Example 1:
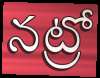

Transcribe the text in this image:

నట్రో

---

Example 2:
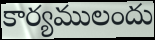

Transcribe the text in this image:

కార్యములందు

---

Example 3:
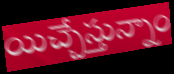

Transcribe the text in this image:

యిచ్చేస్తున్నాం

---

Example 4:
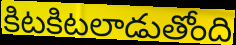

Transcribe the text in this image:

కిటకిటలాడుతోంది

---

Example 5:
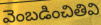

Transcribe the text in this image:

వెంబడించితివి